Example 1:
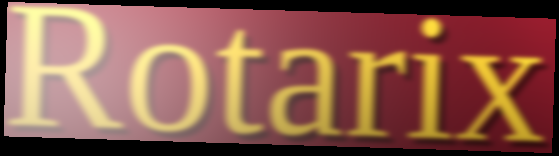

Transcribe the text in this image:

Rotarix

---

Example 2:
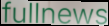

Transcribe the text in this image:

fullnews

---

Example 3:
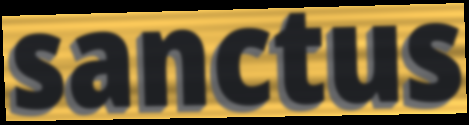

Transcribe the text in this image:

sanctus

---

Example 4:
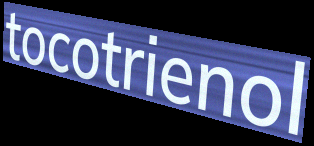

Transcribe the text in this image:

tocotrienol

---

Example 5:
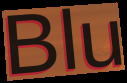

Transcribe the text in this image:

Blu